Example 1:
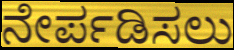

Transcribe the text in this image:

ನೇರ್ಪಡಿಸಲು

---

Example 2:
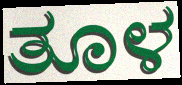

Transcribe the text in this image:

ತೂಳ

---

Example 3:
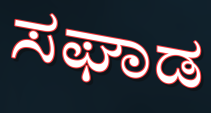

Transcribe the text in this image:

ಸಘಾಡ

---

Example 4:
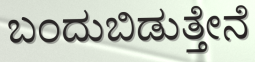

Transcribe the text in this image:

ಬಂದುಬಿಡುತ್ತೇನೆ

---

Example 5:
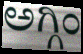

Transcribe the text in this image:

ಅಗ್ಗಿಂ